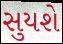
સુયશે